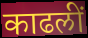
काढलीं